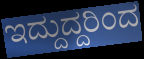
ಇದ್ದುದ್ದರಿಂದ